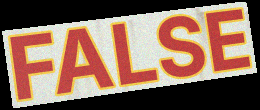
FALSE